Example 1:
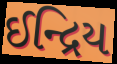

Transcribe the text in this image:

ઈન્દ્રિય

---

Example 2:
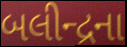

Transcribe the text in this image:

બલીન્દ્રના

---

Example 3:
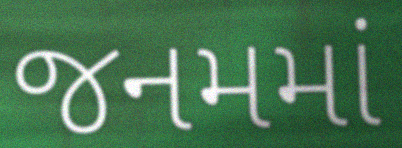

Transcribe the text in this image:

જનમમાં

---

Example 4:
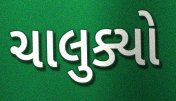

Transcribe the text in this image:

ચાલુક્યો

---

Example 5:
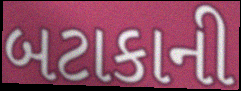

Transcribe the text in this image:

બટાકાની